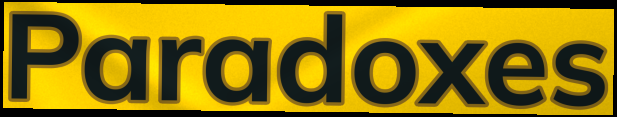
Paradoxes